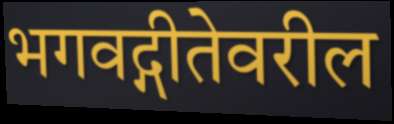
भगवद्गीतेवरील